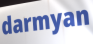
darmyan